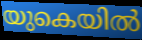
യുകെയിൽ